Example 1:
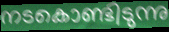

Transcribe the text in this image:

നടകൊണ്ടിടുന്നു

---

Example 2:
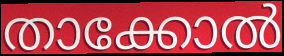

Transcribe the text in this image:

താക്കോൽ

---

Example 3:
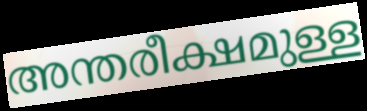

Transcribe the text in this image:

അന്തരീക്ഷമുള്ള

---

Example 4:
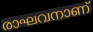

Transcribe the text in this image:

രാഘവനാണ്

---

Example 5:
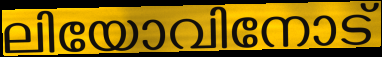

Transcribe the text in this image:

ലിയോവിനോട്